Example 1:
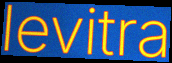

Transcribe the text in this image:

levitra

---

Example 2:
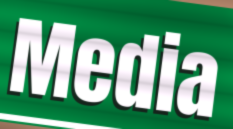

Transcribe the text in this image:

Media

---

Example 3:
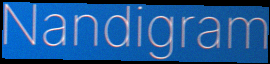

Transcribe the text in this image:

Nandigram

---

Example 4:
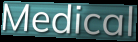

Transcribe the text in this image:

Medical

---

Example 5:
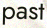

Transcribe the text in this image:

past